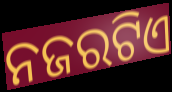
ନଜରଟିଏ